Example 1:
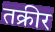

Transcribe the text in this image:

तक्रीर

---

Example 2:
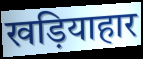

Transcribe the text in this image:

खड़ियाहार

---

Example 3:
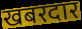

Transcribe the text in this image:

खबरदार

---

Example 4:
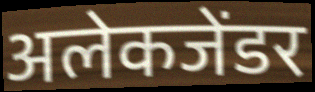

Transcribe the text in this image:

अलेकजेंडर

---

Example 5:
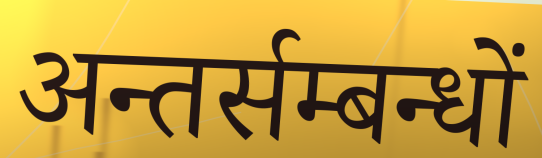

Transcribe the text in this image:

अन्तर्सम्बन्धों